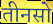
तीनसो